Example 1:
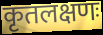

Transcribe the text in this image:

कृतलक्षणः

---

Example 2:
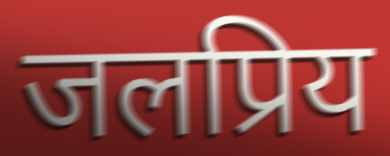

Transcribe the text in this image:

जलप्रिय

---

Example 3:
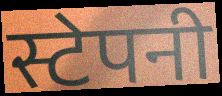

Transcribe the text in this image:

स्टेपनी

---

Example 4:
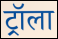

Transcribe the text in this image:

ट्रॉला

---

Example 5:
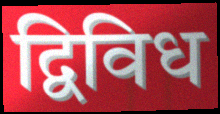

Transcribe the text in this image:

द्विविध